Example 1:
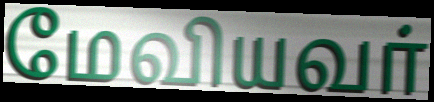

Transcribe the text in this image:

மேவியவர்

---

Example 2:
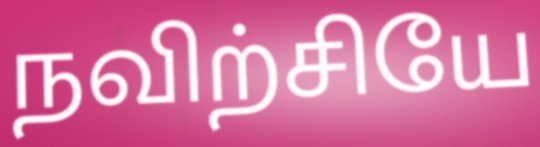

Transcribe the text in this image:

நவிற்சியே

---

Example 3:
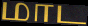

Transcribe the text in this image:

மாட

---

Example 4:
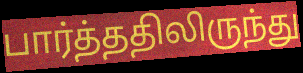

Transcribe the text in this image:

பார்த்ததிலிருந்து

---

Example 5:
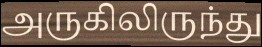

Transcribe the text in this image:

அருகிலிருந்து